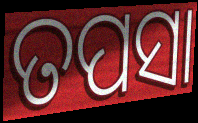
ତପସା